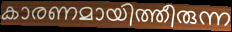
കാരണമായിത്തീരുന്ന